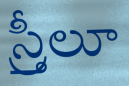
స్ర్తీలూ